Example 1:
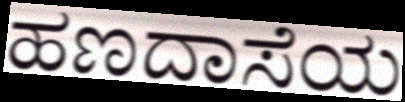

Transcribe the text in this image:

ಹಣದಾಸೆಯ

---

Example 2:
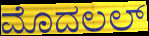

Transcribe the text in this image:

ಮೊದಲಲ್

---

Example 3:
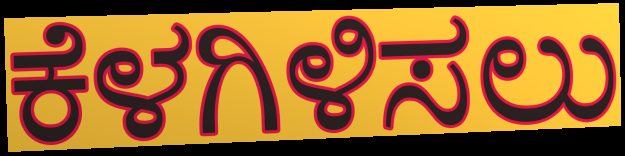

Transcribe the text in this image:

ಕೆಳಗಿಳಿಸಲು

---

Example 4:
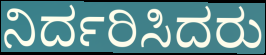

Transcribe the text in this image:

ನಿರ್ದರಿಸಿದರು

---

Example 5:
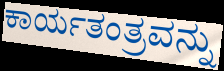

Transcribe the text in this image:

ಕಾರ್ಯತಂತ್ರವನ್ನು